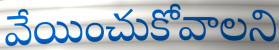
వేయించుకోవాలని